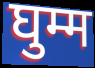
घुम्म